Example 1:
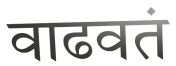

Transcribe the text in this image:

वाढवतं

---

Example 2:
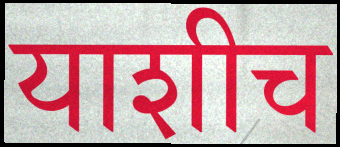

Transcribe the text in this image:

याशीच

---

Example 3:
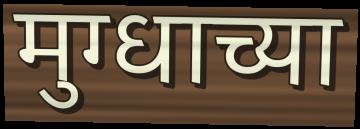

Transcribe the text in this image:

मुग्धाच्या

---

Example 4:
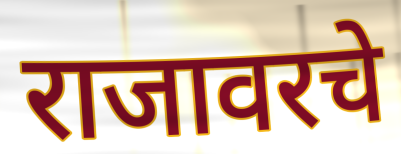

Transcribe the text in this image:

राजावरचे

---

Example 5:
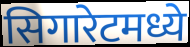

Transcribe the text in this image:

सिगारेटमध्ये